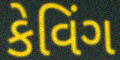
કેવિંગ